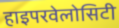
हाइपरवेलोसिटी